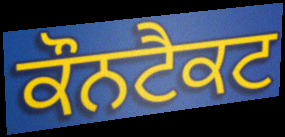
ਕੌਨਟੈਕਟ